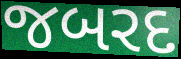
જબરદ